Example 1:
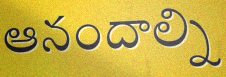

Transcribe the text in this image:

ఆనందాల్ని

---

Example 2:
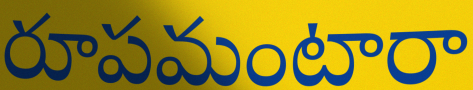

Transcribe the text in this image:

రూపమంటారా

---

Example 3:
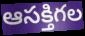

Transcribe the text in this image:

ఆసక్తిగల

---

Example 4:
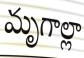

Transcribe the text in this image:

మృగాల్లా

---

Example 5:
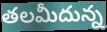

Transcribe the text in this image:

తలమీదున్న